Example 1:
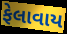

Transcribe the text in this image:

ફેલાવાય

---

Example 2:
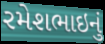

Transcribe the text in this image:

રમેશભાઇનું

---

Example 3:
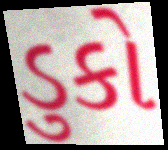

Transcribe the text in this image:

ડુકો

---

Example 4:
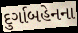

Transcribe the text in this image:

દુર્ગાબહેનના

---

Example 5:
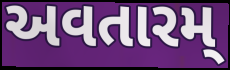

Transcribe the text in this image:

અવતારમ્